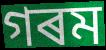
গৰম